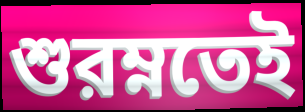
শুরম্নতেই